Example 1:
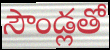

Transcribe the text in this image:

సౌండ్లతో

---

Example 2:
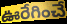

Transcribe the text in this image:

ఊరేగించే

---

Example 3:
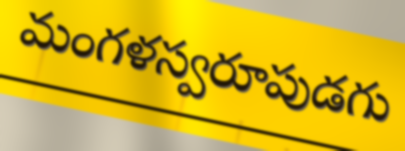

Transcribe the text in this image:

మంగళస్వరూపుడగు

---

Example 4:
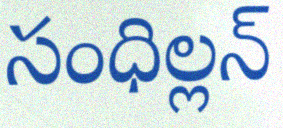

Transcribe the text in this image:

సంధిల్లన్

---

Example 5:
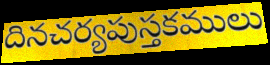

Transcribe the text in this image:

దినచర్యపుస్తకములు